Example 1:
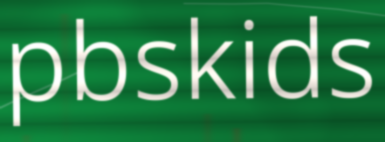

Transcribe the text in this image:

pbskids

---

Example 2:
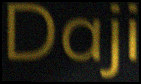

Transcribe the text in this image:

Daji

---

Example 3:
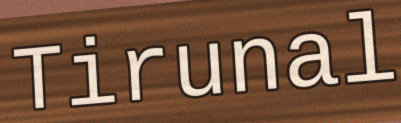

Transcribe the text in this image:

Tirunal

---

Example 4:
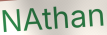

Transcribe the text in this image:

NAthan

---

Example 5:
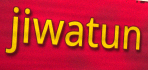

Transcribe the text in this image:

jiwatun